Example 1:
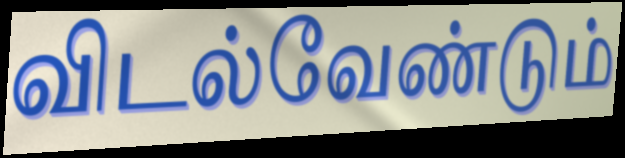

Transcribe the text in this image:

விடல்வேண்டும்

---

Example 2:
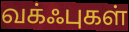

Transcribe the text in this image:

வக்ஃபுகள்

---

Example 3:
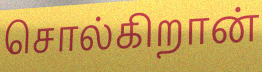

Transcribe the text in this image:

சொல்கிறான்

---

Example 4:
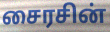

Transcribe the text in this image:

சைரசின்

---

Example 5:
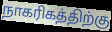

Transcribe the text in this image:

நாகரிகத்திற்கு